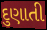
દુણાતી